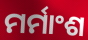
ମର୍ମାଂଶ